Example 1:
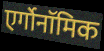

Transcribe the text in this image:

एर्गोनॉमिक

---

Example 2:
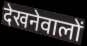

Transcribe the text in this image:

देखनेवालों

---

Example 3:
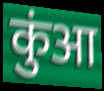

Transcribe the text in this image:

कुंआ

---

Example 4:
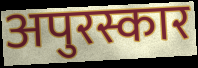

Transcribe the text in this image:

अपुरस्कार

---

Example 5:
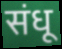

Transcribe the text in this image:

संधू